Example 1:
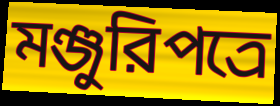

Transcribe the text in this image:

মঞ্জুরিপত্রে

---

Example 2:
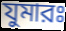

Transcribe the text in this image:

যুমারঃ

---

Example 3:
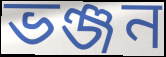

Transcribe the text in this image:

ভঞ্জন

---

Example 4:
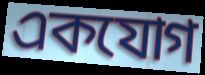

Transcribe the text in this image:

একযোগ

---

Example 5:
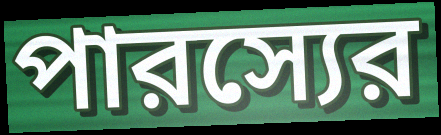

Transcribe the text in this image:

পারস্যের